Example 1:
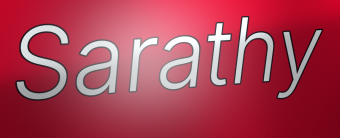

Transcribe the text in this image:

Sarathy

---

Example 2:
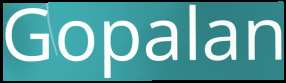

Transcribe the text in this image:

Gopalan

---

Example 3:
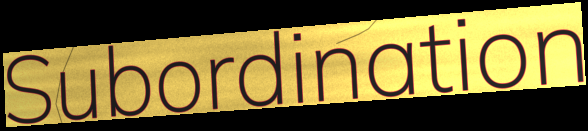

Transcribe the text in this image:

Subordination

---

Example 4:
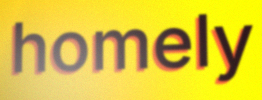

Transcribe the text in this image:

homely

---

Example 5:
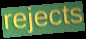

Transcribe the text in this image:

rejects